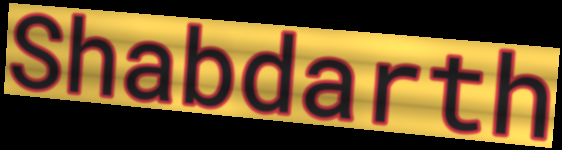
Shabdarth